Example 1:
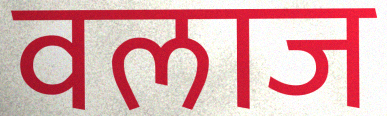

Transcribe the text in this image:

वलाज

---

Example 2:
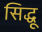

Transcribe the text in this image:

सिद्धू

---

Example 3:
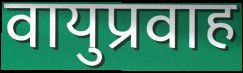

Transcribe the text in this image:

वायुप्रवाह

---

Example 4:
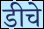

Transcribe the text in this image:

डीचे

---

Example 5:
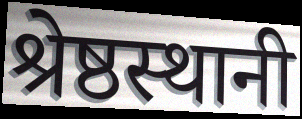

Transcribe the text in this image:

श्रेष्ठस्थानी